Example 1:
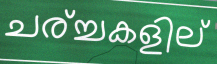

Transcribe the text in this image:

ചര്ച്ചകളില്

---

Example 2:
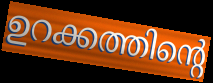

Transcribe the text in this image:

ഉറക്കത്തിന്റെ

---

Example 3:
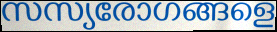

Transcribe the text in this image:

സസ്യരോഗങ്ങളെ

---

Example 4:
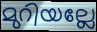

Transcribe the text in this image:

മുറിയല്ലേ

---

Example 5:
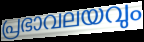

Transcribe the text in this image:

പ്രഭാവലയവും